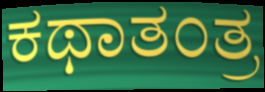
ಕಥಾತಂತ್ರ